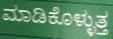
ಮಾಡಿಕೊಳ್ಳುತ್ತ